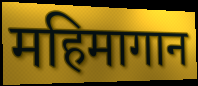
महिमागान